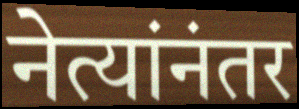
नेत्यांनंतर